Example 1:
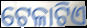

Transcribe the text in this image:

ଟେଳାଟିଏ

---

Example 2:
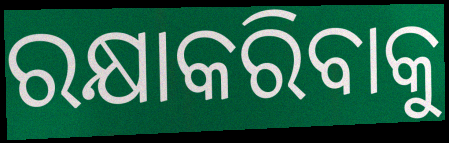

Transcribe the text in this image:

ରକ୍ଷାକରିବାକୁ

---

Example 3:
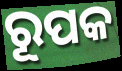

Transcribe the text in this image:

ରୂପକ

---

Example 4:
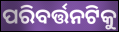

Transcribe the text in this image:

ପରିବର୍ତ୍ତନଟିକୁ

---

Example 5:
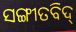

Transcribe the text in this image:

ସଙ୍ଗୀତବିଦ୍